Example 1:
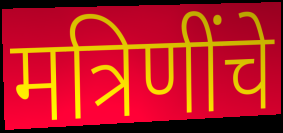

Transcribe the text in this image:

मत्रिणींचे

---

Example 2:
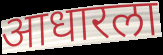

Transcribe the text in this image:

आधारला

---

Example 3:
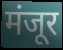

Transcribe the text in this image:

मंजूर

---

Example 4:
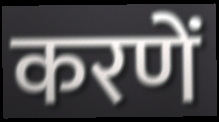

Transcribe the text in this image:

करणें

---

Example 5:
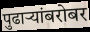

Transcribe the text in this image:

पुढाऱ्यांबरोबर